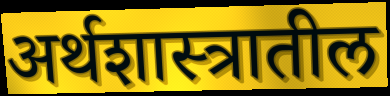
अर्थशास्त्रातील